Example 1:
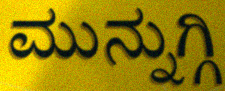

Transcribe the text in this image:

ಮುನ್ನುಗ್ಗಿ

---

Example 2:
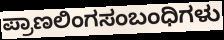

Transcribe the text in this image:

ಪ್ರಾಣಲಿಂಗಸಂಬಂಧಿಗಳು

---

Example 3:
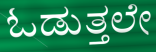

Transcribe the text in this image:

ಓಡುತ್ತಲೇ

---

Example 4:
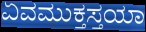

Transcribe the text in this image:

ಏವಮುಕ್ತಸ್ತಯಾ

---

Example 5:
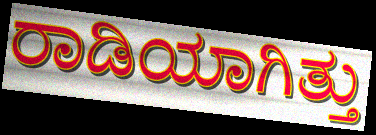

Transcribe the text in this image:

ರಾಡಿಯಾಗಿತ್ತು